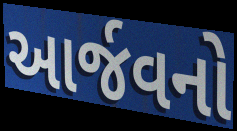
આર્જવનો